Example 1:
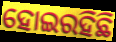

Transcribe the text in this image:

ହୋଇରହିଛି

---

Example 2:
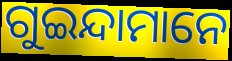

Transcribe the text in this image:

ଗୁଇନ୍ଦାମାନେ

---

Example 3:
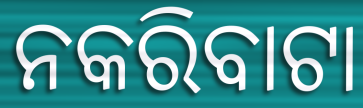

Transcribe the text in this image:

ନକରିବାଟା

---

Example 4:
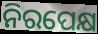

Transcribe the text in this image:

ନିରପେକ୍ଷ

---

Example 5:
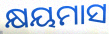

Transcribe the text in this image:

କ୍ଷୟମାସ